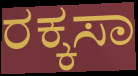
ರಕ್ಕಸಾ